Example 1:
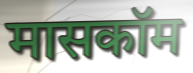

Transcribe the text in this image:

मासकॉम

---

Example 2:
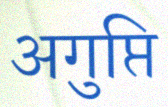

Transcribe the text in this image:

अगुप्ति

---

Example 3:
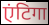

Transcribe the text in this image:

एंटिगा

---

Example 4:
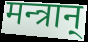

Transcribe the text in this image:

मन्त्रान्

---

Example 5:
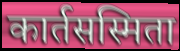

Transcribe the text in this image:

कार्तसस्मिता